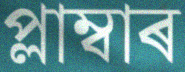
প্লাম্বাৰ